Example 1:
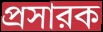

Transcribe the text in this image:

প্রসারক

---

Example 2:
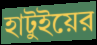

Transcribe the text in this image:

হাটুইয়ের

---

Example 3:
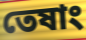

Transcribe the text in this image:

তেষাং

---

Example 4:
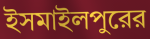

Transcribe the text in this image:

ইসমাইলপুরের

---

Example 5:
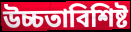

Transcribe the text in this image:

উচ্চতাবিশিষ্ট